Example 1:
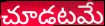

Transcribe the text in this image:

చూడటమే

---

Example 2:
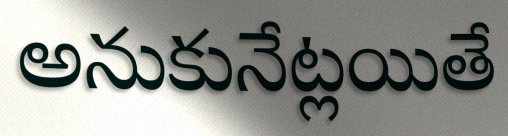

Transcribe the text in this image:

అనుకునేట్లయితే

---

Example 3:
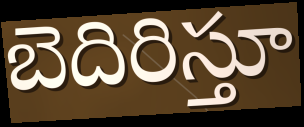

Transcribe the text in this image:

బెదిరిస్తూ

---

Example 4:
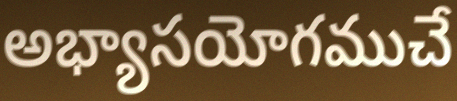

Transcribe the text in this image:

అభ్యాసయోగముచే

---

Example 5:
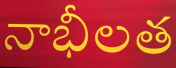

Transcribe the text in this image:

నాభీలత